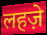
लहज़े